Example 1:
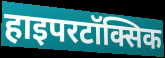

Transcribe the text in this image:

हाइपरटॉक्सिक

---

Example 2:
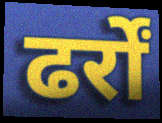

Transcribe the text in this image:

ढर्रों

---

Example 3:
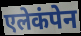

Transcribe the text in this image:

एलेकंपेन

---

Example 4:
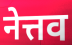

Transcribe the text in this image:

नेत्तव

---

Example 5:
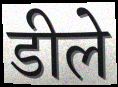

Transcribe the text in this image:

डीले